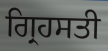
ਗ੍ਰਿਹਸਤੀ